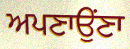
ਅਪਣਾਉਂਣਾ